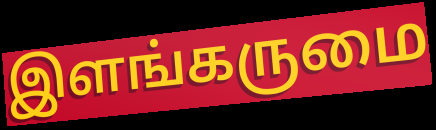
இளங்கருமை